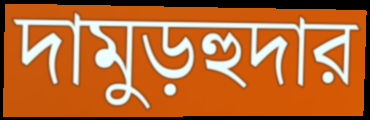
দামুড়হুদার